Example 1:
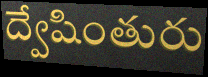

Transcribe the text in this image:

ద్వేషింతురు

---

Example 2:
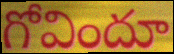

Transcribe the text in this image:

గోవిందూ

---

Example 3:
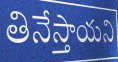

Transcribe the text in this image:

తినేస్తాయని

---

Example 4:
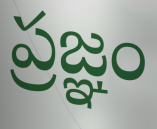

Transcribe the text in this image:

ప్రజ్ఞం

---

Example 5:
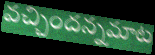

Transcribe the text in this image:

వచ్చిందన్నమాట